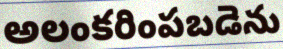
అలంకరింపబడెను